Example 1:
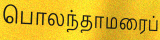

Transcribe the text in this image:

பொலந்தாமரைப்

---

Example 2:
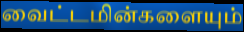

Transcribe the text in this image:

வைட்டமின்களையும்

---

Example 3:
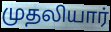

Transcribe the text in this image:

முதலியார்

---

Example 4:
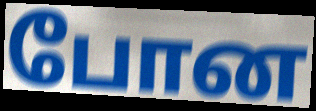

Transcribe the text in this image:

போன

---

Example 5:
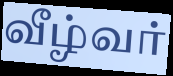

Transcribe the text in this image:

வீழ்வர்